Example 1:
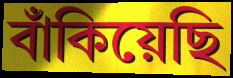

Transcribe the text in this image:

বাঁকিয়েছি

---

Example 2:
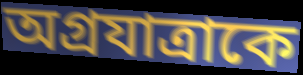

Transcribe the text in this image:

অগ্রযাত্রাকে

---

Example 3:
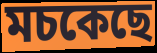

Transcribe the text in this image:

মচকেছে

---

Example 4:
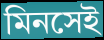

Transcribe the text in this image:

মিনসেই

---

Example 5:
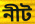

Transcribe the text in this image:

নীট